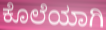
ಕೊಲೆಯಾಗಿ